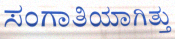
ಸಂಗಾತಿಯಾಗಿತ್ತು